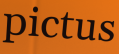
pictus